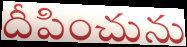
దీపించును